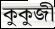
কুকুজী